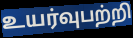
உயர்வுபற்றி